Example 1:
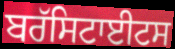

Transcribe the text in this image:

ਬਰੱਸਿਟਾਈਟਸ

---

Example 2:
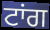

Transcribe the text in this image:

ਟਾਂਗ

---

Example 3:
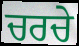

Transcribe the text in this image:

ਚਰਚੇ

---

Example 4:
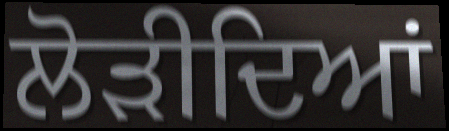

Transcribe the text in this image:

ਲੋੜੀਦਿਆਂ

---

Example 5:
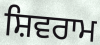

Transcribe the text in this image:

ਸ਼ਿਵਰਾਮ